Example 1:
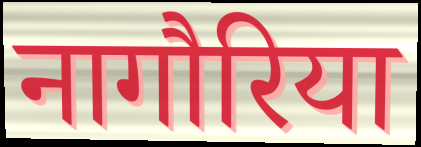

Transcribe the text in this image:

नागौरिया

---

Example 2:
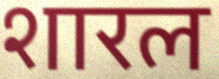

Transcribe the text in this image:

शारल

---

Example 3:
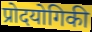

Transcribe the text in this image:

प्रोदयोगिकी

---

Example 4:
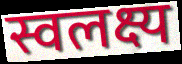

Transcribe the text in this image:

स्वलक्ष्य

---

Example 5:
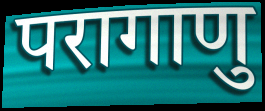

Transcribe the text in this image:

परागाणु